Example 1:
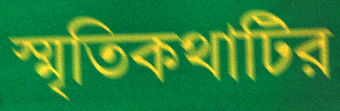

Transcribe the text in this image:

স্মৃতিকথাটির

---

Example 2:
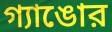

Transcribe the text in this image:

গ্যাঙোর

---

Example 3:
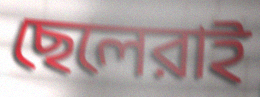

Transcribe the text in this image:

ছেলেরাই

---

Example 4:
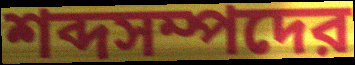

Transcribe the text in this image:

শব্দসম্পদের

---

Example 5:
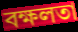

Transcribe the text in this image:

বক্ষলতা